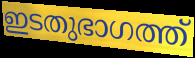
ഇടതുഭാഗത്ത്